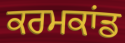
ਕਰਮਕਾਂਡ